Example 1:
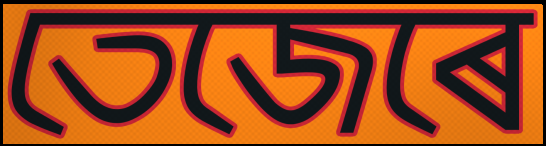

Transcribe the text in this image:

তেজেৰে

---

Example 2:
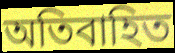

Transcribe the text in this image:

অতিবাহিত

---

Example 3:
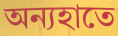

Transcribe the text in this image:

অন্যহাতে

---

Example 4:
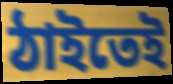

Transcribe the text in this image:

ঠাইতেই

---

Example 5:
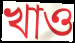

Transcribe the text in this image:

খাও